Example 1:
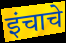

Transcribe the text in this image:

इंचाचे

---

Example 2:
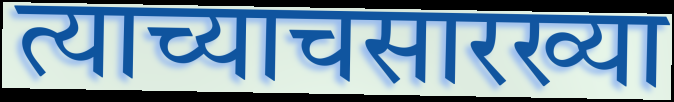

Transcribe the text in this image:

त्याच्याचसारख्या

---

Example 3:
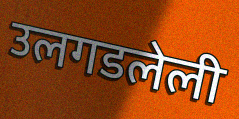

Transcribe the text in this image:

उलगडलेली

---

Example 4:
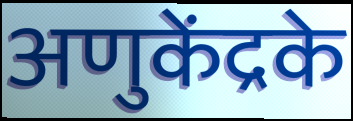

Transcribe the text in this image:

अणुकेंद्रके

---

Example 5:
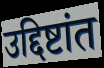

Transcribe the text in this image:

उद्दिष्टांत